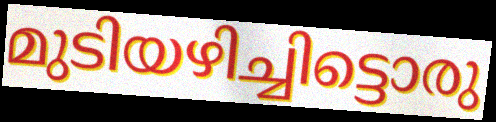
മുടിയഴിച്ചിട്ടൊരു